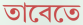
তাবেতে